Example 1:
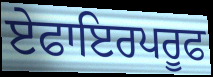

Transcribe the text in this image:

ਏਫਾਇਰਪਰੂਫ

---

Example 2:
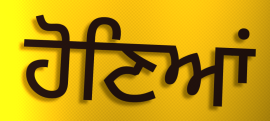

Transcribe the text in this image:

ਹੋਣਿਆਂ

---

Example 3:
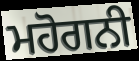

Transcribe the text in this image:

ਮਹੋਗਨੀ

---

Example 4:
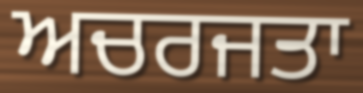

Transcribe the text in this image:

ਅਚਰਜਤਾ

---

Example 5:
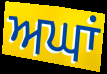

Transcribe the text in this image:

ਅਘਾਂ